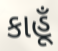
કાહૂઁ